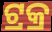
ଟ୍ରକ୍ର